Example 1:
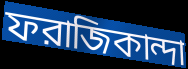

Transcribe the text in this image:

ফরাজিকান্দা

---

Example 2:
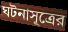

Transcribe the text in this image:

ঘটনাসূত্রের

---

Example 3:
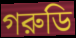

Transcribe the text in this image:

গরুডি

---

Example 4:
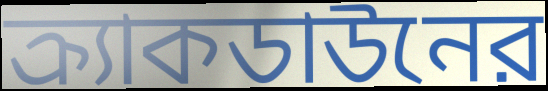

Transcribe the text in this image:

ক্র্যাকডাউনের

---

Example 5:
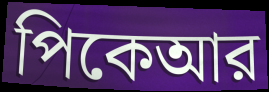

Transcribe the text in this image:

পিকেআর